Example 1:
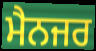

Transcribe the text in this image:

ਮੈਨਜਰ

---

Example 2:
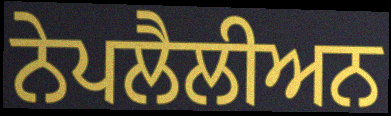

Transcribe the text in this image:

ਨੇਪਲੈਲੀਅਨ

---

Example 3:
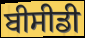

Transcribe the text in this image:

ਬੀਸੀਡੀ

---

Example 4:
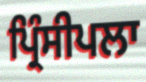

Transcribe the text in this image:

ਪ੍ਰਿੰਸੀਪਲਾ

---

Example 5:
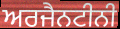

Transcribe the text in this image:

ਅਰਜੈਨਟੀਨੀ